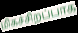
மிகச்சிறப்பாக